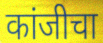
कांजीचा